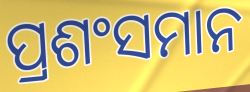
ପ୍ରଶଂସମାନ